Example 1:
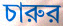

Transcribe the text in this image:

চারুর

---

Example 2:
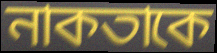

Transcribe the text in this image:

নাকতাকে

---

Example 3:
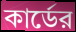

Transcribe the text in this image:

কার্ডের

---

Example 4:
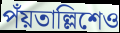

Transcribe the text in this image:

পঁয়তাল্লিশেও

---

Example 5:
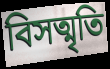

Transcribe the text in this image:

বিসত্মৃতি